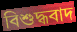
বিশুদ্ধবাদ